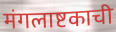
मंगलाष्टकाची